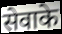
सेवाके